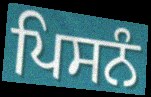
ਪਿਸਨੰ